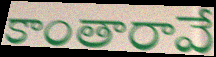
కాంతారావే